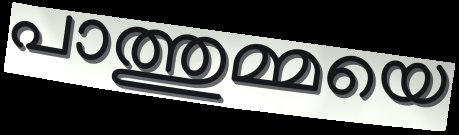
പാത്തുമ്മയെ